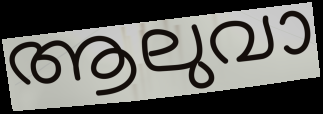
ആലുവാ